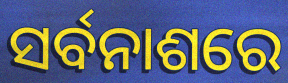
ସର୍ବନାଶରେ